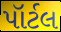
પૉર્ટલ